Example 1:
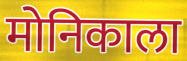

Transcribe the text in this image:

मोनिकाला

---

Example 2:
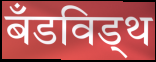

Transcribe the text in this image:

बँडविड्थ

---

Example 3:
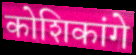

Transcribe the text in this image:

कोशिकांगे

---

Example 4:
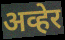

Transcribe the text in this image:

अव्हेर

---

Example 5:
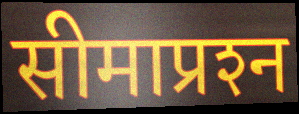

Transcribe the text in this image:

सीमाप्रश्न